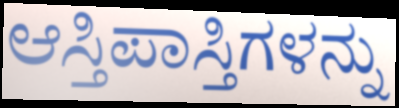
ಆಸ್ತಿಪಾಸ್ತಿಗಳನ್ನು